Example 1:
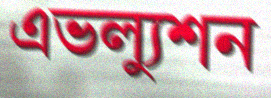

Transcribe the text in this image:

এভল্যুশন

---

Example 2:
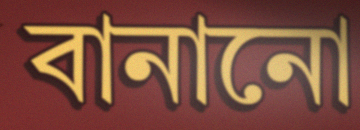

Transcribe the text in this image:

বানানো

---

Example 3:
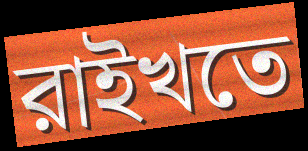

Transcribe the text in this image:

রাইখতে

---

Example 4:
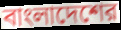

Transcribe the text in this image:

বাংলাদেশের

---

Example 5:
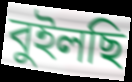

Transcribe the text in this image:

বুইলছি